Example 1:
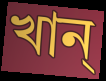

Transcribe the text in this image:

খান্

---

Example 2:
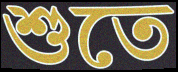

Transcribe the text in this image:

শুতে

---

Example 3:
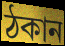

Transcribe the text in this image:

ঠকান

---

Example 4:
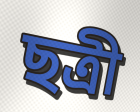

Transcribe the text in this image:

ছত্রী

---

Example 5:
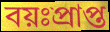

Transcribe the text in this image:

বয়ঃপ্রাপ্ত